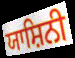
ਯਾਸ਼ਿਨੀ